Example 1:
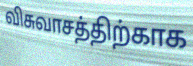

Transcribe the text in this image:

விசுவாசத்திற்காக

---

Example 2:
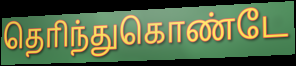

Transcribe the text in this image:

தெரிந்துகொண்டே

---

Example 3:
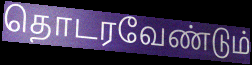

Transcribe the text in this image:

தொடரவேண்டும்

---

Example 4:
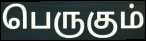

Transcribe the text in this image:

பெருகும்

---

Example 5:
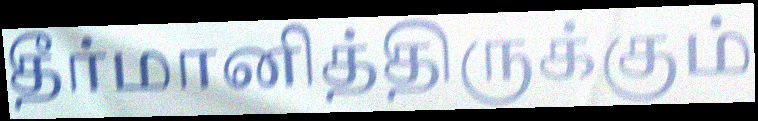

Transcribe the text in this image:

தீர்மானித்திருக்கும்